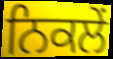
ਨਿਕਲੇਂ